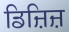
ਡਿਜ਼ਿਜ਼